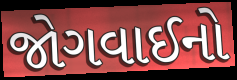
જોગવાઈનો